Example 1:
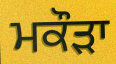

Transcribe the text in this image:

ਮਕੌੜਾ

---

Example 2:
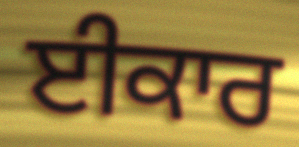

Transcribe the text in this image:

ਈਕਾਰ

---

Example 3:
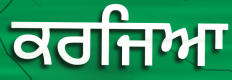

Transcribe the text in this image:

ਕਰਜਿਆ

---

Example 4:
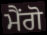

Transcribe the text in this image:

ਮੈਂਗੋ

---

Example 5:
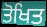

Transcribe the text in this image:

ਤੋਖਿਤ